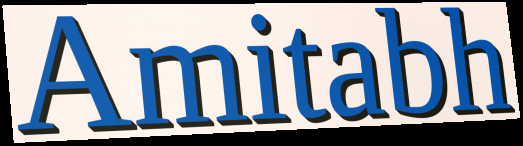
Amitabh